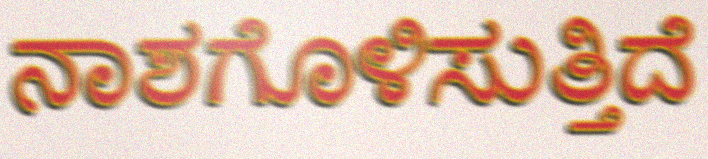
ನಾಶಗೊಳಿಸುತ್ತಿದೆ